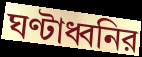
ঘণ্টাধ্বনির